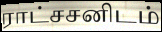
ராட்சசனிடம்